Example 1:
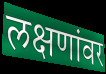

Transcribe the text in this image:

लक्षणांवर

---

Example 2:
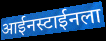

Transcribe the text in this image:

आईनस्टाईनला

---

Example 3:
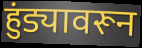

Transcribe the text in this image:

हुंड्यावरून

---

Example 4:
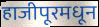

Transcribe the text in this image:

हाजीपूरमधून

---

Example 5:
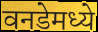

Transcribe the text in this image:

वनडेमध्ये